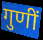
गुणीं